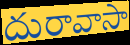
దురావాసా